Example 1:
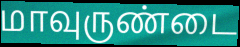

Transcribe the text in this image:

மாவுருண்டை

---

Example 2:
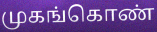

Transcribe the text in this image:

முகங்கொண்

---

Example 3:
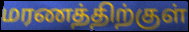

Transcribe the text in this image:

மரணத்திற்குள்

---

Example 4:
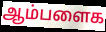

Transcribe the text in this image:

ஆம்பளைக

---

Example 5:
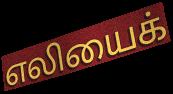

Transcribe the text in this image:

எலியைக்